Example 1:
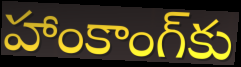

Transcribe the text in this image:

హాంకాంగ్‌కు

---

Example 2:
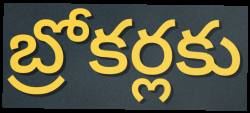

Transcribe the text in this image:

బ్రోకర్లకు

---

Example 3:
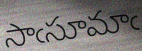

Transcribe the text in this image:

సాఁసూమాఁ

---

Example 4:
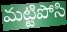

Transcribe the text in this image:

మట్టిపోసి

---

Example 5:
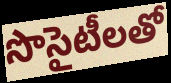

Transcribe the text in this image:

సొసైటీలతో